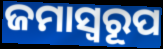
ଜମାସ୍ବରୂପ